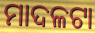
ମାଦଳଟା